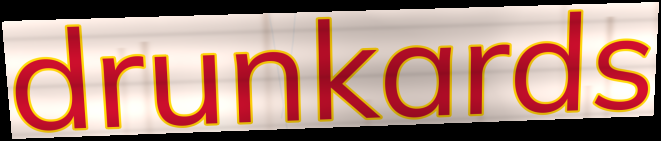
drunkards